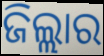
ଜିଲ୍ଲାର